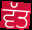
ਵੱਤ